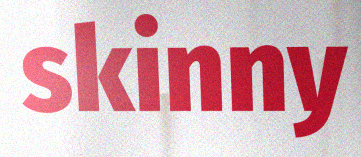
skinny